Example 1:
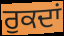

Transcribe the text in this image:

ਰੁਕਦਾਂ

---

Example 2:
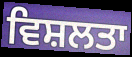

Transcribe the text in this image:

ਵਿਸ਼ਲਤਾ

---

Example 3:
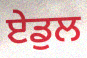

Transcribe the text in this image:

ਏਡੁਲ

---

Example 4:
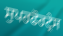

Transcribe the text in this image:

ਸੁਪਰਫੋਰਟ੍ਰੇਸ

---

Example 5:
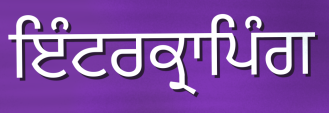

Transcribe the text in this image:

ਇੰਟਰਕ੍ਰਾਪਿੰਗ